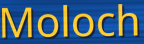
Moloch